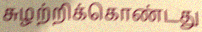
சுழற்றிக்கொண்டது